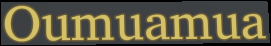
Oumuamua